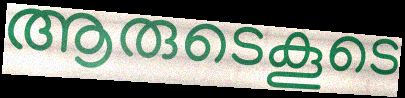
ആരുടെകൂടെ